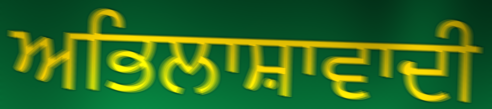
ਅਭਿਲਾਸ਼ਾਵਾਦੀ